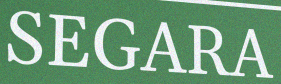
SEGARA